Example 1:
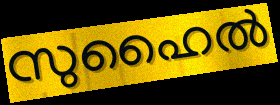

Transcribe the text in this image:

സുഹൈൽ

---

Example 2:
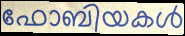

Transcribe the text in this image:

ഫോബിയകൾ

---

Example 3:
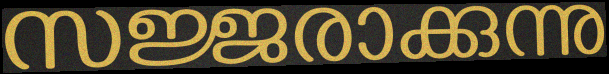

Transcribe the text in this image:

സജ്ജരാക്കുന്നു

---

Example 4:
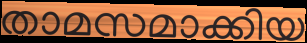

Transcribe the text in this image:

താമസമാക്കിയ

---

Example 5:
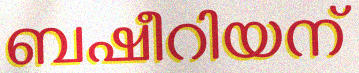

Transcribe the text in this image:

ബഷീറിയന്